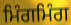
ਮਿੰਗਮਿੰਗ